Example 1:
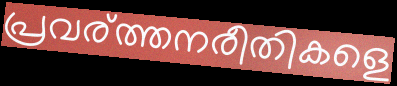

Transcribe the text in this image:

പ്രവര്ത്തനരീതികളെ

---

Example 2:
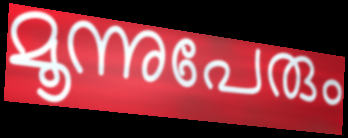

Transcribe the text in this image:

മൂന്നുപേരും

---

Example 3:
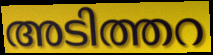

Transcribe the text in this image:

അടിത്തറ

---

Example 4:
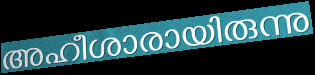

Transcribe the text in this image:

അഹീശാരായിരുന്നു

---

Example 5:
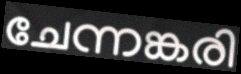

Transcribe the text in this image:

ചേന്നങ്കരി